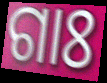
ଗାଃ